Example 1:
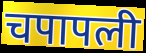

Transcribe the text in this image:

चपापली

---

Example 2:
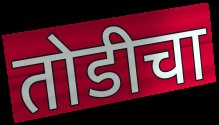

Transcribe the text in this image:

तोडीचा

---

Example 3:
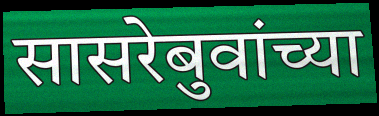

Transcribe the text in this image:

सासरेबुवांच्या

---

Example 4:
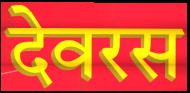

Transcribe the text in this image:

देवरस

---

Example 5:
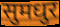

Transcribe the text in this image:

सुमधुर